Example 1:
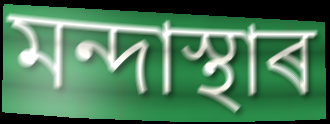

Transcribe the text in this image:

মন্দাস্থাৰ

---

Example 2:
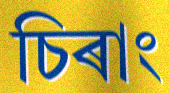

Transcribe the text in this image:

চিৰাং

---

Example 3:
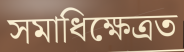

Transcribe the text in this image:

সমাধিক্ষেত্ৰত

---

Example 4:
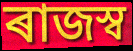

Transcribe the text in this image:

ৰাজস্ব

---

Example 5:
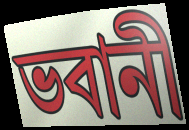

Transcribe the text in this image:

ভবানী